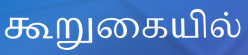
கூறுகையில்